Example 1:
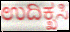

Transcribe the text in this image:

ಉದಿಕ್ಖಸಿ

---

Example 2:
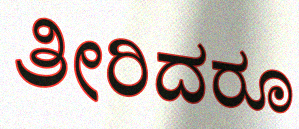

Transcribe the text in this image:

ತೀರಿದರೂ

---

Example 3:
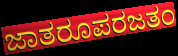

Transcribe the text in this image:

ಜಾತರೂಪರಜತಂ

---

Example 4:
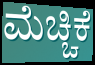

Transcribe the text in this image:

ಮೆಚ್ಚಿಕೆ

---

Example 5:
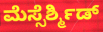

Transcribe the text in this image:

ಮೆಸ್ಸೆರ್ಶ್ಮಿಡ್